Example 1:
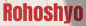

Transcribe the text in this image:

Rohoshyo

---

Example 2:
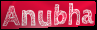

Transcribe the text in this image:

Anubha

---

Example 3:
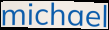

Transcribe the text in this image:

michael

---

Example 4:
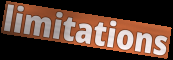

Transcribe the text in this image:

limitations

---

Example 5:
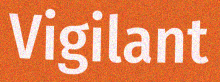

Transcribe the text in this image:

Vigilant